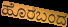
ಹೊರಬಂದ